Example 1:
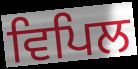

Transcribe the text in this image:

ਵਿਪਿਲ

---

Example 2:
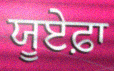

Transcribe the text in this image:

ਯੂਏਫ਼ਾ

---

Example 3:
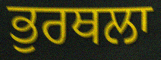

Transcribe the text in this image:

ਭੁਰਥਲਾ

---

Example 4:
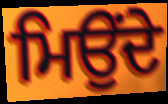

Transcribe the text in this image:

ਮਿਉਂਦੇ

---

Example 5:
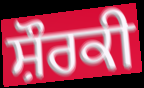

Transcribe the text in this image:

ਸ਼ੌਰਕੀ